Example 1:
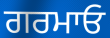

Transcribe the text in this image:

ਗਰਮਾਓ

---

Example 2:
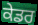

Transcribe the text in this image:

ਕੇਡਰ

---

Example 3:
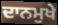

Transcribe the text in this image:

ਦਾਨਮੁਖੇ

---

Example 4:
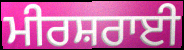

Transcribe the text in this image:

ਮੀਰਸ਼ਰਾਈ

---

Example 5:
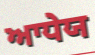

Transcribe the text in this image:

ਆਧੇਯ